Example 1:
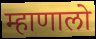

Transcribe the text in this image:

म्हाणालो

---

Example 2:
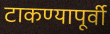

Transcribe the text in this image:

टाकण्यापूर्वी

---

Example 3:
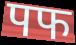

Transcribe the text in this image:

पफ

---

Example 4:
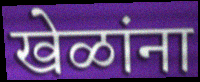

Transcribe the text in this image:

खेळांना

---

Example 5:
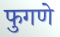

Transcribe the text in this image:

फुगणे